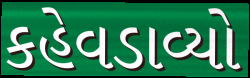
કહેવડાવ્યો